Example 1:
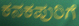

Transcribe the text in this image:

ಕನಕಪುರಿಗೆ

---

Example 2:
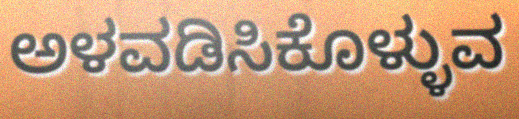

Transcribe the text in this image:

ಅಳವಡಿಸಿಕೊಳ್ಳುವ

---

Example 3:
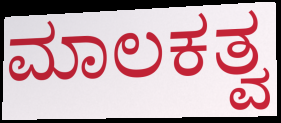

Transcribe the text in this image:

ಮಾಲಕತ್ವ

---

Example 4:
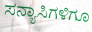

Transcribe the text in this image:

ಸನ್ಯಾಸಿಗಳಿಗೂ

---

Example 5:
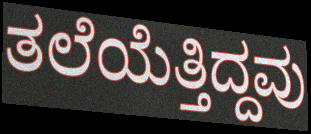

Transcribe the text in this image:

ತಲೆಯೆತ್ತಿದ್ದವು